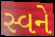
સ્વને